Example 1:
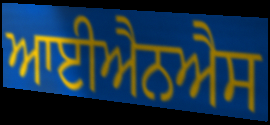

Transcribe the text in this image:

ਆਈਐਨਐਸ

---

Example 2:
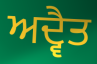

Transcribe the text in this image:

ਅਦ੍ਵੈਤ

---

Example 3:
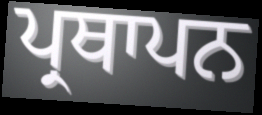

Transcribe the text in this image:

ਪ੍ਰਥਾਪਨ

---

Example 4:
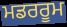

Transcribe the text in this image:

ਮਡਰਰੂਮ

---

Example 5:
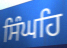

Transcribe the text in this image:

ਸਿੰਘਹਿ